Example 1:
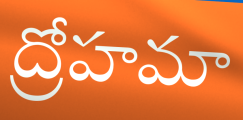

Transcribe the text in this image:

ద్రోహమా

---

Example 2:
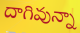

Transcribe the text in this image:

దాగివున్నా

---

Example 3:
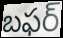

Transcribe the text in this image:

బఫర్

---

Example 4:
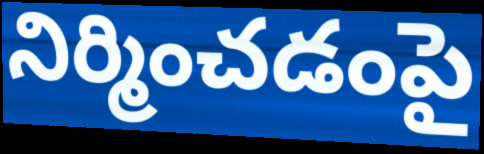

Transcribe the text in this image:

నిర్మించడంపై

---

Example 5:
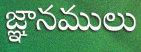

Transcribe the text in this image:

జ్ఞానములు